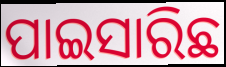
ପାଇସାରିଛ